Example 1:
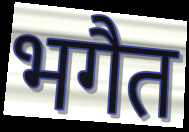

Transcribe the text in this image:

भगैत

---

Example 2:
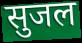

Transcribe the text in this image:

सुजल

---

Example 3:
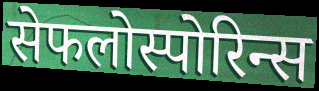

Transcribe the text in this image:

सेफलोस्पोरिन्स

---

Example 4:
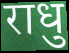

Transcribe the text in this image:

राधु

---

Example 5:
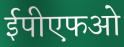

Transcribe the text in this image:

ईपीएफओ